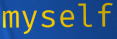
myself